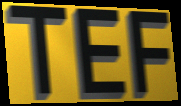
TEF